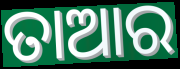
ତାଆର